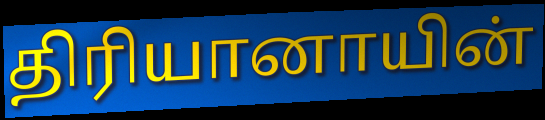
திரியானாயின்